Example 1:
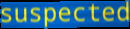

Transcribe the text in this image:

suspected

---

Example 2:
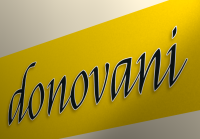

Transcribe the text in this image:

donovani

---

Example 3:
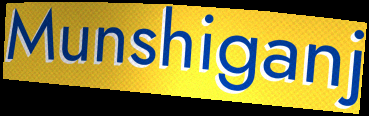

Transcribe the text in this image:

Munshiganj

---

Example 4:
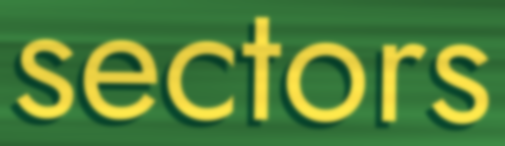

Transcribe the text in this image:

sectors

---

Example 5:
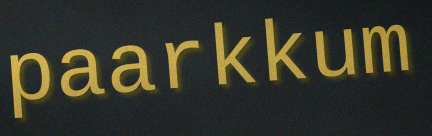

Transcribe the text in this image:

paarkkum